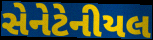
સેનેટેનીયલ